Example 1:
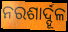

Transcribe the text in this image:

ନରଶାର୍ଦ୍ଦୂଳ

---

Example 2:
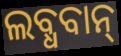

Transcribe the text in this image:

ଲବ୍ଧବାନ୍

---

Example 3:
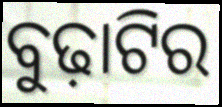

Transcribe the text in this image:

ବୁଢ଼ାଟିର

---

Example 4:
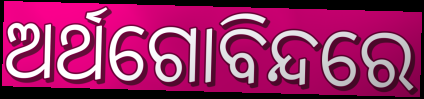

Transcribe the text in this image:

ଅର୍ଥଗୋବିନ୍ଦରେ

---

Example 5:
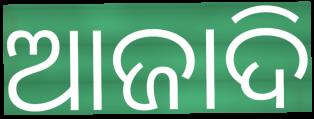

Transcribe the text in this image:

ଆଜାଦି